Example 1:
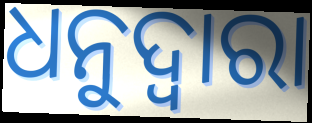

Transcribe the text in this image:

ଧନୁଦ୍ୱାରା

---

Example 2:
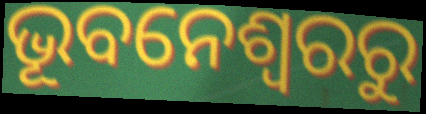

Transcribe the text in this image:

ଭୂବନେଶ୍ୱରରୁ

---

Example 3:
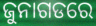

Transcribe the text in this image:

ଜୁନାଗଡରେ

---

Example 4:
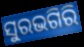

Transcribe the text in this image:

ସୁରଭଗିରି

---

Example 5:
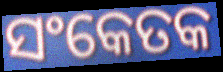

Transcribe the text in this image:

ସଂକେତକ